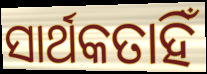
ସାର୍ଥକତାହିଁ